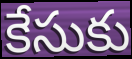
కేసుకు